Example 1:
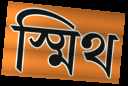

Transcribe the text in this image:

স্মিথ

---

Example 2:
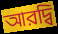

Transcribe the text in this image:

আরদ্বি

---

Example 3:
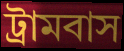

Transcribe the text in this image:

ট্রামবাস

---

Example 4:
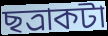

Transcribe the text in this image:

ছত্রাকটা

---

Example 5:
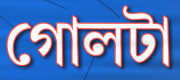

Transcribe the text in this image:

গোলটা